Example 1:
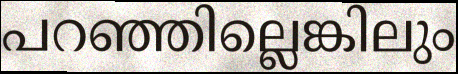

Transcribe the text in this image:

പറഞ്ഞില്ലെങ്കിലും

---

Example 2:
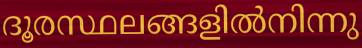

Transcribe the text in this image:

ദൂരസ്ഥലങ്ങളിൽനിന്നു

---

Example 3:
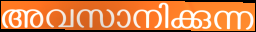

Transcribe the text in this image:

അവസാനിക്കുന്ന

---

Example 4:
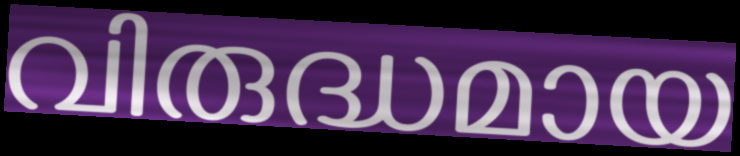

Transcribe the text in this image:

വിരുദ്ധമായ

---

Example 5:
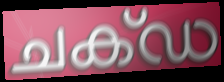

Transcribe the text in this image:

ചക്ഡ